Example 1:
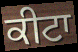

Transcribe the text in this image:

ਕੀਟਾ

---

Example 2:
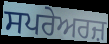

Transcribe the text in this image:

ਸਪਰੇਅਰਜ਼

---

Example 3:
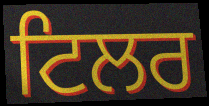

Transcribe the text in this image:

ਟਿਲਰ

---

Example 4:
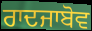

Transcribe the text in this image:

ਰਾਦਜਾਬੋਵ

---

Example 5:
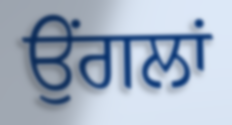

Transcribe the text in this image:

ਉਂਗਲਾਂ